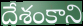
దేశంకాని